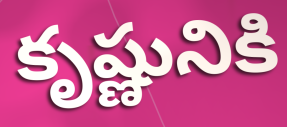
కృష్ణునికి